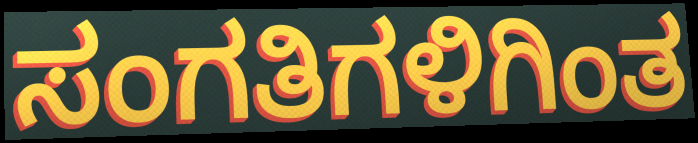
ಸಂಗತಿಗಳಿಗಿಂತ